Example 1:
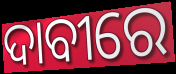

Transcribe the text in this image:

ଦାବୀରେ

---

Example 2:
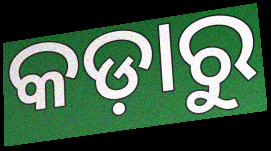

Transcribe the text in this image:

କଡ଼ାରୁ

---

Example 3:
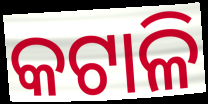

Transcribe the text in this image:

କଟାଳି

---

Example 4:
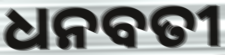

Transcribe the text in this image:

ଧନବତୀ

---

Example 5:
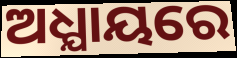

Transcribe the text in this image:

ଅଧ୍ଯାୟରେ